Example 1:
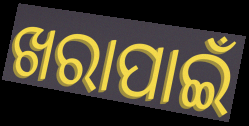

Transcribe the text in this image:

ଖରାପାଇଁ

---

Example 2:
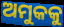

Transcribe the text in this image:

ଅମୁକକୁ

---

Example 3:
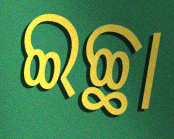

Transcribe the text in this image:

ଇଚ୍ଛା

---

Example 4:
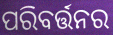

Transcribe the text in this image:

ପରିବର୍ତ୍ତନର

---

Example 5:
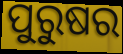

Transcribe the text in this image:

ପୁରୁଷର